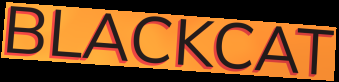
BLACKCAT